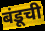
बंडूची